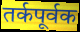
तर्कपूर्वक